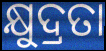
କ୍ଷୁଦ୍ରତା